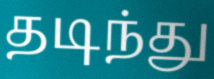
தடிந்து